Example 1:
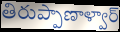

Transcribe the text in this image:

తిరుప్పాణాళ్వార్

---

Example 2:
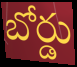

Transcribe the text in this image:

బోర్డు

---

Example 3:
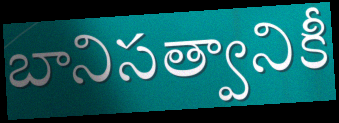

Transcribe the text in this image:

బానిసత్వానికీ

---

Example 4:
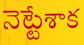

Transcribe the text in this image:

నెట్టేశాక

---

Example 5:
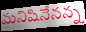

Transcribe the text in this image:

మనిషినేనన్న